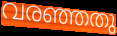
വരഞ്ഞതു